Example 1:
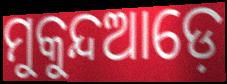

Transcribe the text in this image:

ମୁକୁନ୍ଦଆଡ଼େ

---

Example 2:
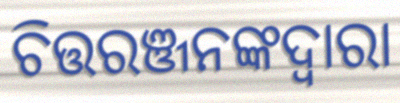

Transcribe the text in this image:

ଚିତ୍ତରଞ୍ଜନଙ୍କଦ୍ଵାରା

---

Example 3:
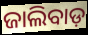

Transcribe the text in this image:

ଜାଲିବାଡ଼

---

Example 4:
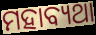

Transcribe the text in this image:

ମହାବ୍ୟଥା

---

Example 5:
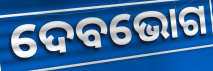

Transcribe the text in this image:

ଦେବଭୋଗ